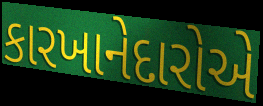
કારખાનેદારોએ